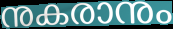
നുകരാനും